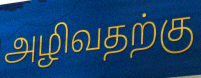
அழிவதற்கு